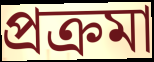
প্রক্রমা